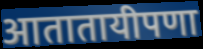
आतातायीपणा